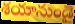
శయానుండై